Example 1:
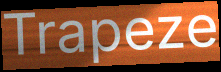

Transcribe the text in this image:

Trapeze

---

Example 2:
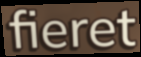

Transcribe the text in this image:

fieret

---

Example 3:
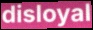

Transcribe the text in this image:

disloyal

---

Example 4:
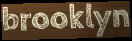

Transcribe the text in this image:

brooklyn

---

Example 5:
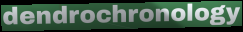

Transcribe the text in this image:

dendrochronology